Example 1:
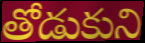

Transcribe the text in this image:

తోడుకుని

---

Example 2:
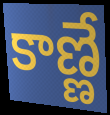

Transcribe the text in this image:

కాణ్ణే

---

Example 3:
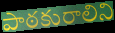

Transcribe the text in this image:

పాఠకురాలిని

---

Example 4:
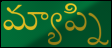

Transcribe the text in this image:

మ్యాప్ని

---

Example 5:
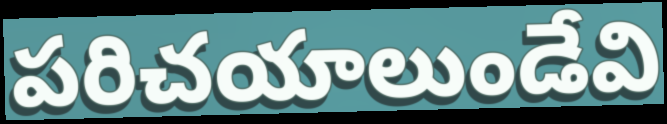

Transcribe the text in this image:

పరిచయాలుండేవి